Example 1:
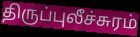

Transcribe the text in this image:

திருப்புலீச்சுரம்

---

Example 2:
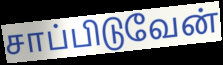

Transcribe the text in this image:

சாப்பிடுவேன்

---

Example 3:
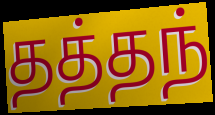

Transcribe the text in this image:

தத்தந்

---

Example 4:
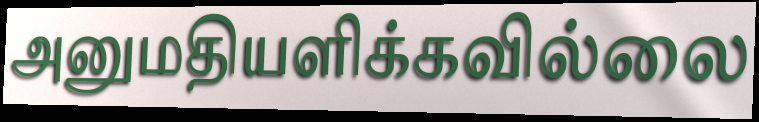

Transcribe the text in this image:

அனுமதியளிக்கவில்லை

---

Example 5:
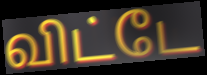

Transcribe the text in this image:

விட்டே